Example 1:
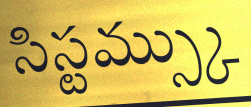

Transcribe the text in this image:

సిస్టమ్స్కు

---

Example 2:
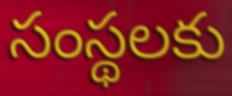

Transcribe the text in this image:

సంస్థలకు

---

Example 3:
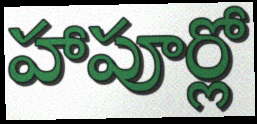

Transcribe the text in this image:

హాపూర్లో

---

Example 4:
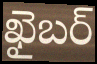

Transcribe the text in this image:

ఖైబర్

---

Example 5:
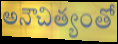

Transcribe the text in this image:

అనౌచిత్యంతో